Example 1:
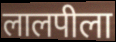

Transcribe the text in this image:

लालपीला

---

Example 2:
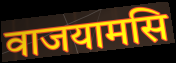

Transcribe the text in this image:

वाजयामसि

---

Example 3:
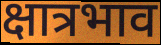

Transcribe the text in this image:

क्षात्रभाव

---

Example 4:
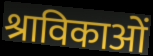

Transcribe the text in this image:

श्राविकाओं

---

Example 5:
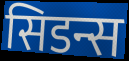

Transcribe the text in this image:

सिडन्स